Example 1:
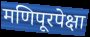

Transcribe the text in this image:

मणिपूरपेक्षा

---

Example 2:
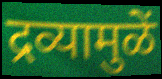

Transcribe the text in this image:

द्रव्यामुळें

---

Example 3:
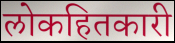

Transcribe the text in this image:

लोकहितकारी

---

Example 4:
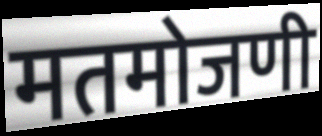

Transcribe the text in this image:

मतमोजणी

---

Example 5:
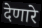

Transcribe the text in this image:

देणारे